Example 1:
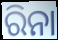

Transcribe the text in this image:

ରିନା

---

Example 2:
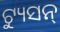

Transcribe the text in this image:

ଟ୍ୟୁସନ୍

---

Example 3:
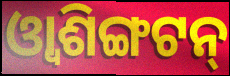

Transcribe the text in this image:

ଓ୍ୱାଶିଙ୍ଗଟନ୍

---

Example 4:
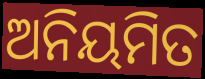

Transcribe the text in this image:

ଅନିୟମିତ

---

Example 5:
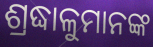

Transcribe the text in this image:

ଶ୍ରଦ୍ଧାଳୁମାନଙ୍କ